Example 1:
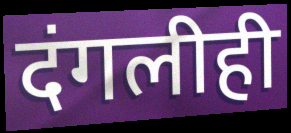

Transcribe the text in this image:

दंगलीही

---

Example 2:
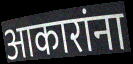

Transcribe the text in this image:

आकारांना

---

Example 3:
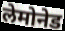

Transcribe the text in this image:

लेमोनेड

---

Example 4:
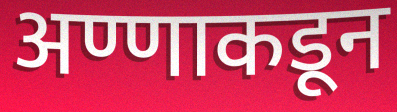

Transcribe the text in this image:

अण्णाकडून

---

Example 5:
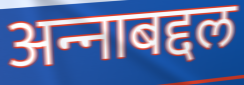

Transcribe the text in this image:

अन्‍नाबद्दल